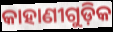
କାହାଣୀଗୁଡ଼ିକ